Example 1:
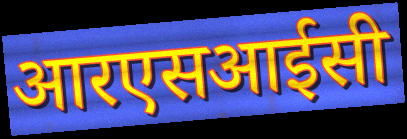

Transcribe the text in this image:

आरएसआईसी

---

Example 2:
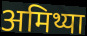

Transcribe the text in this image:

अमिथ्या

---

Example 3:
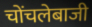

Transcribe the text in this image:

चोंचलेबाजी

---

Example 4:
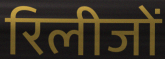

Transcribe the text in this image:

रिलीजों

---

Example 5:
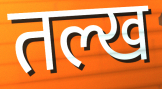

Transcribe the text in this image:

तल्ख